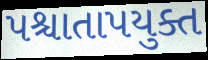
પશ્ચાતાપયુક્ત